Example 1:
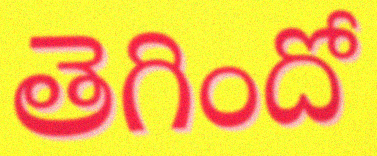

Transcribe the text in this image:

తెగిందో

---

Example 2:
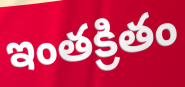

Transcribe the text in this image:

ఇంతక్రితం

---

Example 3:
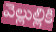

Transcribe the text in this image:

వెల్లుల్లికి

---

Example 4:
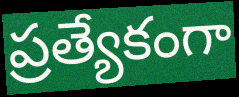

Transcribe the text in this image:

ప్రత్యేకంగా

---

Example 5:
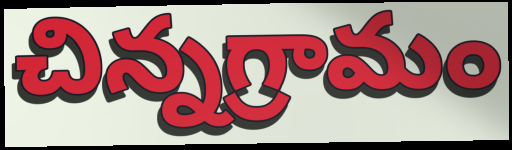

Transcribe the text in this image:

చిన్నగ్రామం